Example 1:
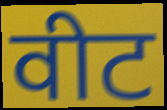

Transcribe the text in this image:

वीट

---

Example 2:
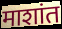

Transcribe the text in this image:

माशांत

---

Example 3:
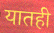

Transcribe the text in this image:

यातही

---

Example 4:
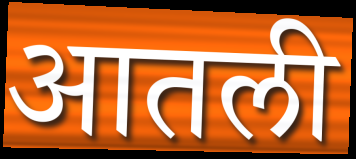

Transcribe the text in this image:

आतली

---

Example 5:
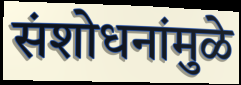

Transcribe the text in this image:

संशोधनांमुळे